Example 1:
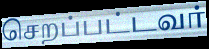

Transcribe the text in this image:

செறப்பட்டவர்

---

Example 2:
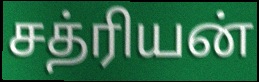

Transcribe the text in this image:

சத்ரியன்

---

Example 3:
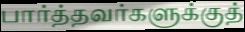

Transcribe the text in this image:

பார்த்தவர்களுக்குத்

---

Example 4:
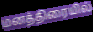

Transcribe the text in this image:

மனத்திரையில்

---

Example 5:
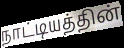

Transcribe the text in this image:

நாட்டியத்தின்